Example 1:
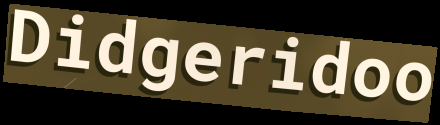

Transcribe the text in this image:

Didgeridoo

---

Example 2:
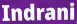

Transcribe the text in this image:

Indrani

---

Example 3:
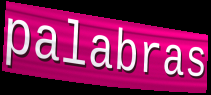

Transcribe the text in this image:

palabras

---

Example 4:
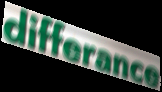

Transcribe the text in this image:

differance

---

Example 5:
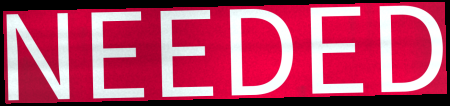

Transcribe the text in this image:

NEEDED